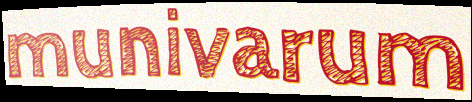
munivarum